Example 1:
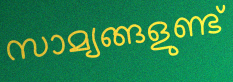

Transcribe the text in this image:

സാമ്യങ്ങളുണ്ട്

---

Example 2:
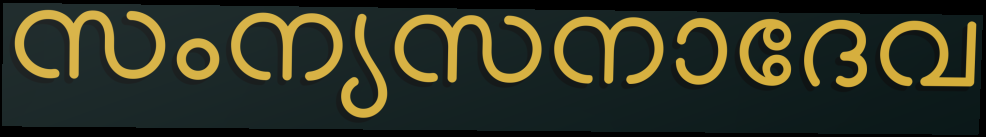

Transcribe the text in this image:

സംന്യസനാദേവ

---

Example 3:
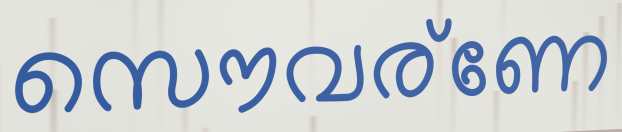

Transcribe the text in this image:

സൌവര്ണേ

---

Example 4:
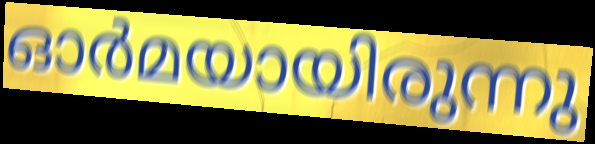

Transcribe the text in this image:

ഓർമയായിരുന്നു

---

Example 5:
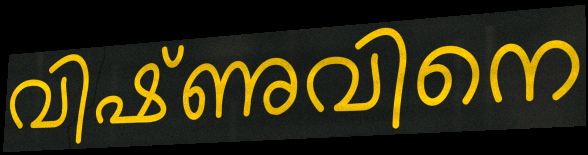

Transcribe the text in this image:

വിഷ്‌ണുവിനെ